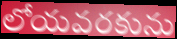
లోయవరకును